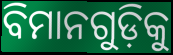
ବିମାନଗୁଡ଼ିକୁ